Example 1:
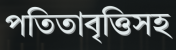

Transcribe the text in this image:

পতিতাবৃত্তিসহ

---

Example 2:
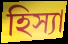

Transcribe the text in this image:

হিস্যা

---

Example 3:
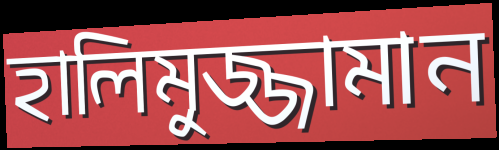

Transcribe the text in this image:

হালিমুজ্জামান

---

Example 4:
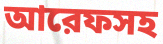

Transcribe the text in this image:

আরেফসহ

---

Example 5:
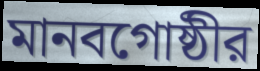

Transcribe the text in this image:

মানবগোষ্ঠীর